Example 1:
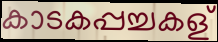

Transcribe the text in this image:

കാടകപ്പച്ചകള്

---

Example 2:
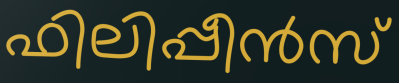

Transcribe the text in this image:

ഫിലിപ്പീൻസ്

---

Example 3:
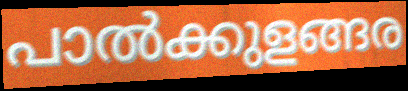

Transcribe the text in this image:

പാൽക്കുളങ്ങര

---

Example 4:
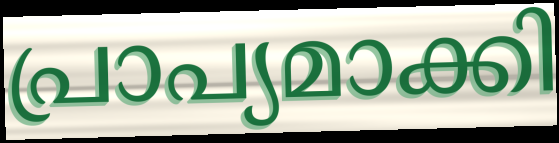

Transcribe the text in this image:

പ്രാപ്യമാക്കി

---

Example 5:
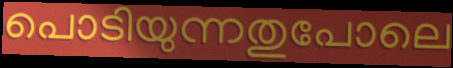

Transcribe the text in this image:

പൊടിയുന്നതുപോലെ